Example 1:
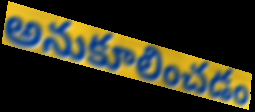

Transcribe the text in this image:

అనుకూలించడం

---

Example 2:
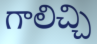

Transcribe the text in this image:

గాలిచ్చి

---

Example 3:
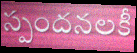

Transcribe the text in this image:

స్పందనలకీ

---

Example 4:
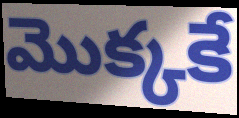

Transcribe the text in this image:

మొక్కకే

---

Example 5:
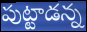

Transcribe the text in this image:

పుట్టాడన్న